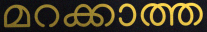
മറക്കാത്ത